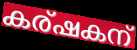
കര്ഷകന്